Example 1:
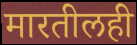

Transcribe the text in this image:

मारतीलही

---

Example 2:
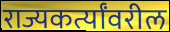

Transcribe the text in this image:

राज्यकर्त्यांवरील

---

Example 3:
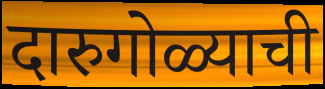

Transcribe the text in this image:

दारुगोळ्याची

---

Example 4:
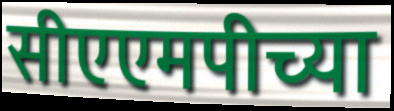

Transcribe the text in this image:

सीएएमपीच्या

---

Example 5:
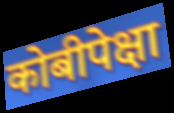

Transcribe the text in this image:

कोबीपेक्षा